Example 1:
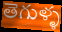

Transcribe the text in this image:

తెగుళ్ళ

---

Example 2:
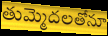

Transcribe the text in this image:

తుమ్మెదలతోనూ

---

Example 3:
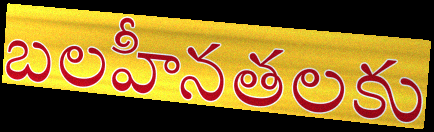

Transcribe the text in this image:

బలహీనతలకు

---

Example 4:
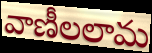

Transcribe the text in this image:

వాణీలలామ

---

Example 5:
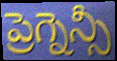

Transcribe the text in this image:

ప్రెగ్నెన్సీ